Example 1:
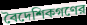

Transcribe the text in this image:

বৈদেশিকগণের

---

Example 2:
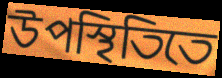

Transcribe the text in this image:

উপস্থিতিতে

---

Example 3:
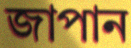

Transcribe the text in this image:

জাপান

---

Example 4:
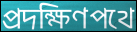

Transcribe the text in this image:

প্রদক্ষিণপথে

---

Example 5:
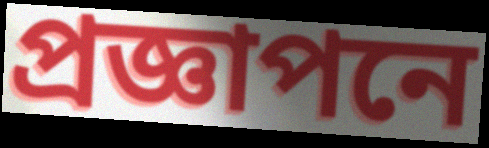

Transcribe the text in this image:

প্রজ্ঞাপনে